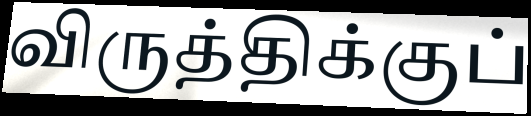
விருத்திக்குப்